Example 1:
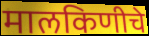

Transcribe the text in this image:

मालकिणीचे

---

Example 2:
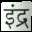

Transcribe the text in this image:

इंद्र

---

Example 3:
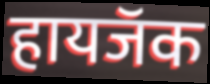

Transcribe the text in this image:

हायजॅक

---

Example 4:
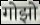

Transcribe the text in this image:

गोझो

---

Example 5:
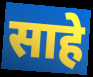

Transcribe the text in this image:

साहे